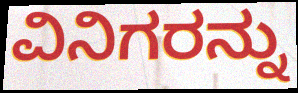
ವಿನಿಗರನ್ನು